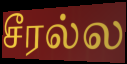
சீரல்ல